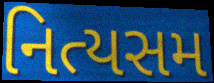
નિત્યસમ